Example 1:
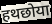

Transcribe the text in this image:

हथछोया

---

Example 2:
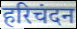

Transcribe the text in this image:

हरिचंदन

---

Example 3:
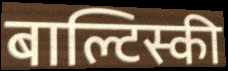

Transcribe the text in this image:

बाल्टिस्की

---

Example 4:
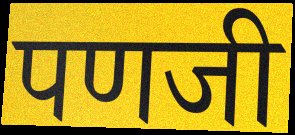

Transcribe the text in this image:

पणजी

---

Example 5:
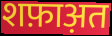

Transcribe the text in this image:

शफ़ाअ़त